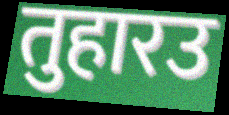
तुहारउ